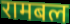
रामबल